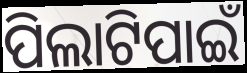
ପିଲାଟିପାଇଁ